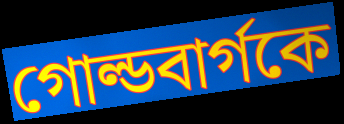
গোল্ডবার্গকে